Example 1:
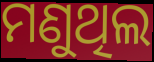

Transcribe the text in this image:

ମଣୁଥିଲ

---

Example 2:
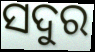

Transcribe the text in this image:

ସଦୁର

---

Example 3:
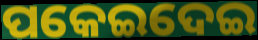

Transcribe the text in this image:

ପକେଇଦେଇ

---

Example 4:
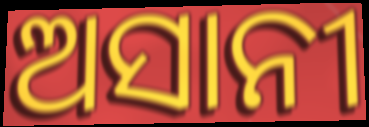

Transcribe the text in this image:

ଅସାନୀ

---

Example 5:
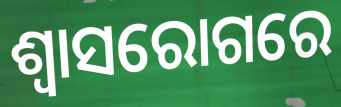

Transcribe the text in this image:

ଶ୍ଵାସରୋଗରେ